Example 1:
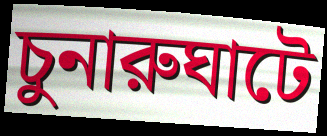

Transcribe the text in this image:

চুনারুঘাটে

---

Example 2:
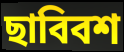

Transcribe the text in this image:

ছাবিবশ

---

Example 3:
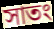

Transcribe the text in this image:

সাতং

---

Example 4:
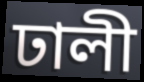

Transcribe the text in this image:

ঢালী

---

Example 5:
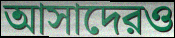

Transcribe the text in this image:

আসাদেরও